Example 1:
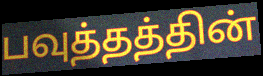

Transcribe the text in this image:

பவுத்தத்தின்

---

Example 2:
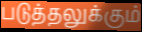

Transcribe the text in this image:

படுத்தலுக்கும்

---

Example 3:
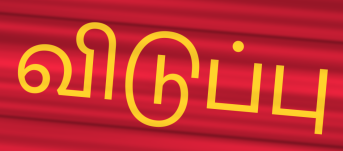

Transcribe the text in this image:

விடுப்பு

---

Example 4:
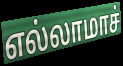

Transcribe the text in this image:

எல்லாமாச்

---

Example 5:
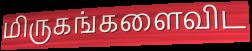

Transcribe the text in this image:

மிருகங்களைவிட